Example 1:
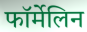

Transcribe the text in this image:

फॉर्मेलिन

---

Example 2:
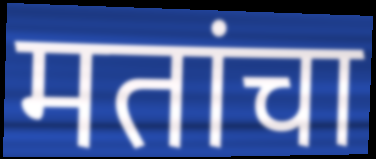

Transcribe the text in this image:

मतांचा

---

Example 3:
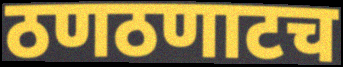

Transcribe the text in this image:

ठणठणाटच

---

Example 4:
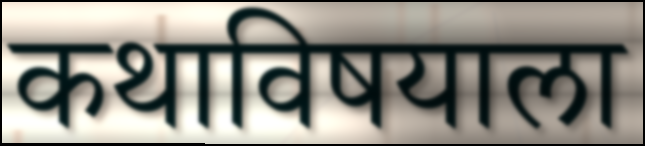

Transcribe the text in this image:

कथाविषयाला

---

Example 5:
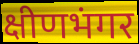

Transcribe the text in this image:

क्षीणभंगर